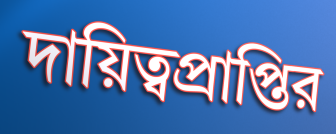
দায়িত্বপ্রাপ্তির